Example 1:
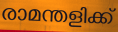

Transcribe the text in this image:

രാമന്തളിക്ക്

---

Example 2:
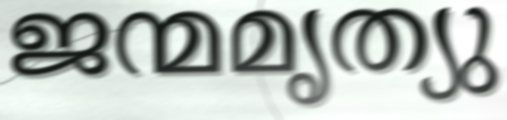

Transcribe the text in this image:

ജന്മമൃത്യു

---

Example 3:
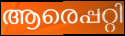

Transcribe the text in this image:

ആരെപ്പറ്റി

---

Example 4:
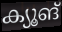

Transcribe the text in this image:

ക്യൂങ്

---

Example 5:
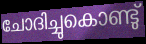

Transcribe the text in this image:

ചോദിച്ചുകൊണ്ടു്